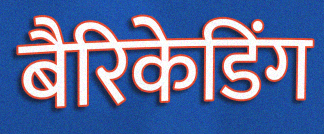
बैरिकेडिंग